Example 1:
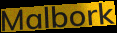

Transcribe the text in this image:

Malbork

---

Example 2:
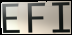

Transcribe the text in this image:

EFI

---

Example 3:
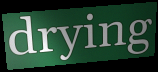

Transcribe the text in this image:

drying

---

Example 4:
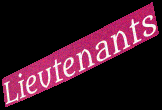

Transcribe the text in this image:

Lieutenants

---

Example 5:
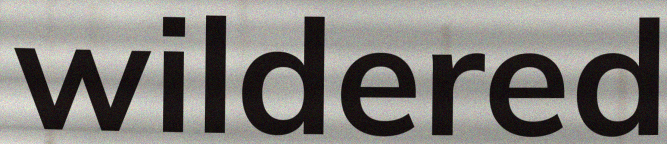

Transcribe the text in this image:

wildered